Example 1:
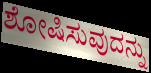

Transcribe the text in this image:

ಶೋಷಿಸುವುದನ್ನು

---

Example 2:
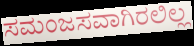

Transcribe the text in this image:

ಸಮಂಜಸವಾಗಿರಲಿಲ್ಲ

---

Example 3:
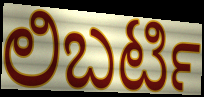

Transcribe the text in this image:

ಲಿಬರ್ಟಿ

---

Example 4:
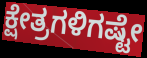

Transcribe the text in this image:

ಕ್ಷೇತ್ರಗಳಿಗಷ್ಟೇ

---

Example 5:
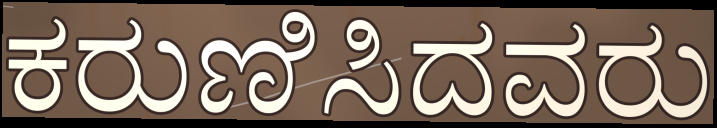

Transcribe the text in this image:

ಕರುಣಿಸಿದವರು